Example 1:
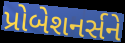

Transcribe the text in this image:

પ્રોબેશનર્સને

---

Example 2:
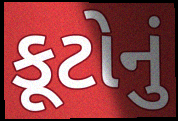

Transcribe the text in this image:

કૂટોનું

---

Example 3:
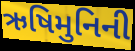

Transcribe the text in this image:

ઋષિમુનિની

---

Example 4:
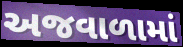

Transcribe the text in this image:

અજવાળામાં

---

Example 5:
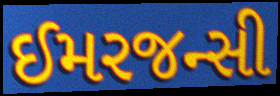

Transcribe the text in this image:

ઈમરજન્સી